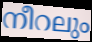
നീറലും